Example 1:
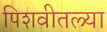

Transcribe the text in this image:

पिशवीतल्या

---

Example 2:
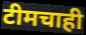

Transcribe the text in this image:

टीमचाही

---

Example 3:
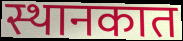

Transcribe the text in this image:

स्थानकात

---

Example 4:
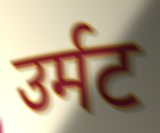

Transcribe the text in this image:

उर्मट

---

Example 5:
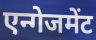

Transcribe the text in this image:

एन्गेजमेंट